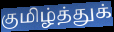
குமிழ்த்துக்